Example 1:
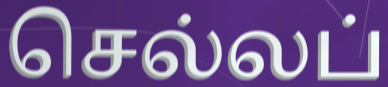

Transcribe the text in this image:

செல்லப்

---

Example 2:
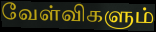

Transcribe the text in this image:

வேள்விகளும்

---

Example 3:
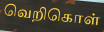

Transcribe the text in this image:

வெறிகொள்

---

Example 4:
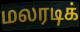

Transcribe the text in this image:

மலரடிக்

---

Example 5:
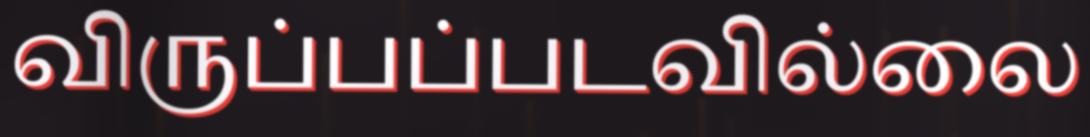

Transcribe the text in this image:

விருப்பப்படவில்லை